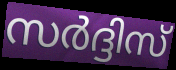
സർദ്ദിസ്